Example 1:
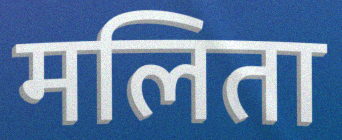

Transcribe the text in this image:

मलिता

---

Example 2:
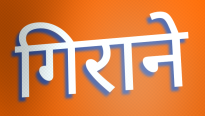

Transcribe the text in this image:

गिराने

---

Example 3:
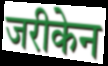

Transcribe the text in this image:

जरीकेन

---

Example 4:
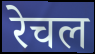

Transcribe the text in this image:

रेचल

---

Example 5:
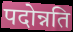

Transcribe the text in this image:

पदोन्नति